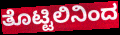
ತೊಟ್ಟಿಲಿನಿಂದ